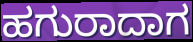
ಹಗುರಾದಾಗ